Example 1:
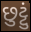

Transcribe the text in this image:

છુટ્ટું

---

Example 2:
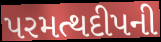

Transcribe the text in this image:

પરમત્થદીપની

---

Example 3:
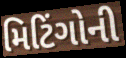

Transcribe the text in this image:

મિટિંગોની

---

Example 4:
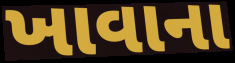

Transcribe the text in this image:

ખાવાના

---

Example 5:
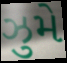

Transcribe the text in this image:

ઝુમે